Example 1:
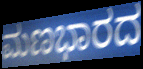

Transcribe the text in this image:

ಮಣಭಾರದ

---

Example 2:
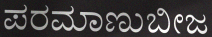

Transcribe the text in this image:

ಪರಮಾಣುಬೀಜ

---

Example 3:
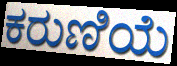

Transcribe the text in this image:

ಕರುಣಿಯೆ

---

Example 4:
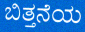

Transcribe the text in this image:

ಬಿತ್ತನೆಯ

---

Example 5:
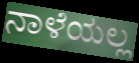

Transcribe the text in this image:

ನಾಳೆಯಲ್ಲ